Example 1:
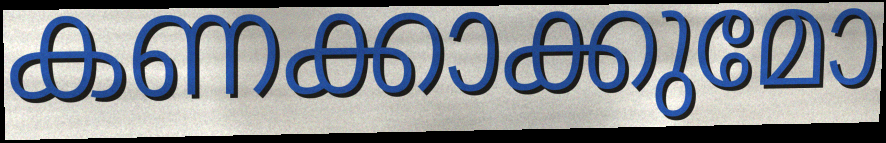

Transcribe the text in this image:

കണക്കാക്കുമോ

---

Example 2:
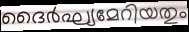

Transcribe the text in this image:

ദൈർഘ്യമേറിയതും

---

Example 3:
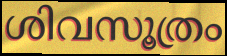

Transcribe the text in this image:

ശിവസൂത്രം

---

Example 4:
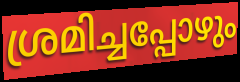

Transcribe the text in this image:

ശ്രമിച്ചപ്പോഴും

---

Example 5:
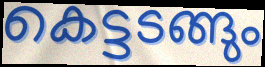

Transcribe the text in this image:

കെട്ടടങ്ങും